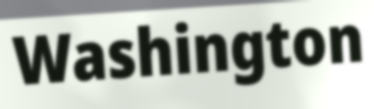
Washington